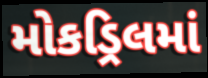
મોકડ્રિલમાં